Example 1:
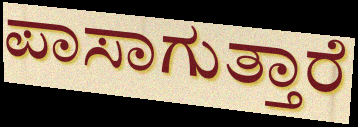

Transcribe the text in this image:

ಪಾಸಾಗುತ್ತಾರೆ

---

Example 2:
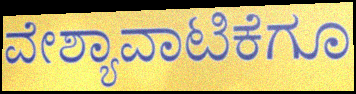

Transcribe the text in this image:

ವೇಶ್ಯಾವಾಟಿಕೆಗೂ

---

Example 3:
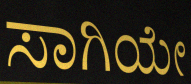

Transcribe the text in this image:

ಸಾಗಿಯೇ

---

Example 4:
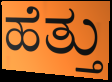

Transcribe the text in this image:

ಹೆತ್ತು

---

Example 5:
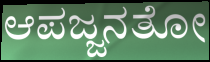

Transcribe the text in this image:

ಆಪಜ್ಜನತೋ